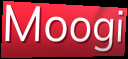
Moogi